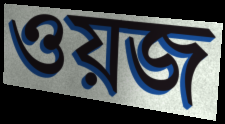
ওয়জ